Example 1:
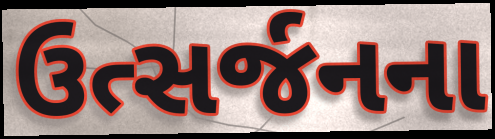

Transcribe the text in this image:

ઉત્સર્જનના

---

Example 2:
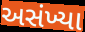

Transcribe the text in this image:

અસંખ્યા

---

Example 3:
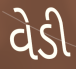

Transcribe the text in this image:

વેડી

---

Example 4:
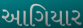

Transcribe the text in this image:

આગિયાર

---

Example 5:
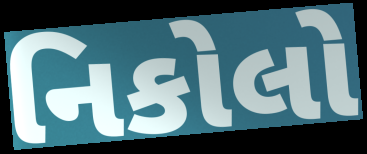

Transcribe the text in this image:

નિકોલો